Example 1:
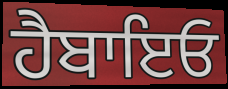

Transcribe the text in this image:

ਹੈਬਾਇਓ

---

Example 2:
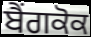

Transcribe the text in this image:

ਬੈਂਗਕੋਕ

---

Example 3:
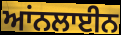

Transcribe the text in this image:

ਆਂਨਲਾਈਨ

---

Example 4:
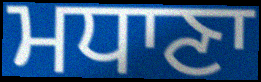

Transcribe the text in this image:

ਮਧਾਣਾ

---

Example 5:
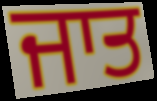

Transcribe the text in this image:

ਜਾਤ